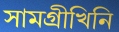
সামগ্ৰীখিনি